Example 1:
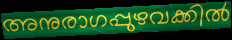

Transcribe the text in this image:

അനുരാഗപ്പുഴവക്കിൽ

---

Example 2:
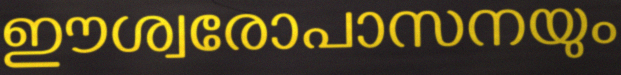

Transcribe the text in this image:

ഈശ്വരോപാസനയും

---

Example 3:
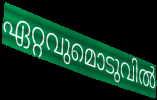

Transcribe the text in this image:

ഏറ്റവുമൊടുവിൽ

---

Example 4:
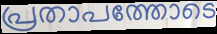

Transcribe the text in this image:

പ്രതാപത്തോടെ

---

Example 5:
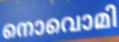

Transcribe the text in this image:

നൊവൊമി